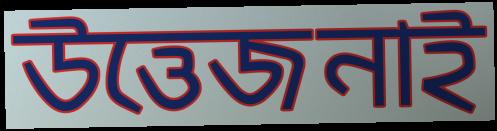
উত্তেজনাই